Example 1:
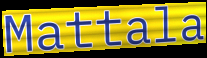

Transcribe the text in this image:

Mattala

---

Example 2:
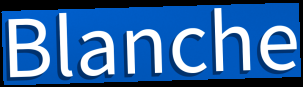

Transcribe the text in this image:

Blanche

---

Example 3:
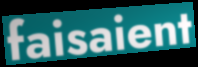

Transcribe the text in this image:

faisaient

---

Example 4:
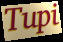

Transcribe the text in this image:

Tupi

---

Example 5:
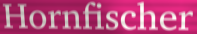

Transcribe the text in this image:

Hornfischer